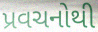
પ્રવચનોથી